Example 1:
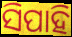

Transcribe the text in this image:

ସିପାହି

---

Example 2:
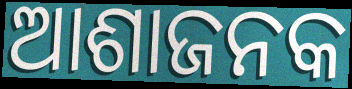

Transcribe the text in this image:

ଆଶାଜନକ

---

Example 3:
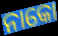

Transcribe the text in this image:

ନାକୋ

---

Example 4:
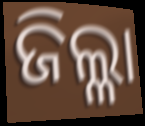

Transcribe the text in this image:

ଜିଲ୍ଳା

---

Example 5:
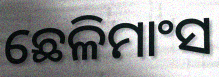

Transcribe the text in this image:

ଛେଳିମାଂସ